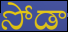
సోడా